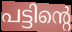
പട്ടിന്റെ